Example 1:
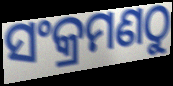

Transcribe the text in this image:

ସଂକ୍ରମଣଠୁ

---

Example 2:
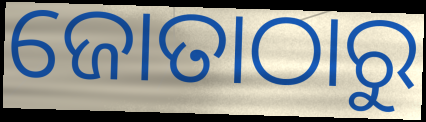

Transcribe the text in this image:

ଜୋତାଠାରୁ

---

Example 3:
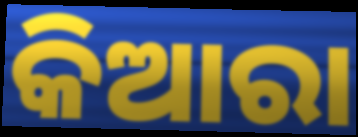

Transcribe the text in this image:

କିଆରା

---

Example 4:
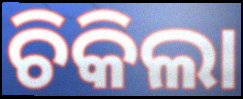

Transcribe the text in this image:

ଚିକିଲା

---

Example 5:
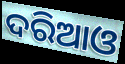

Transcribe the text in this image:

ଦରିଆଓ